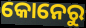
କୋନେରୁ